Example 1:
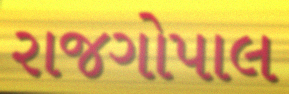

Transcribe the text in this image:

રાજગોપાલ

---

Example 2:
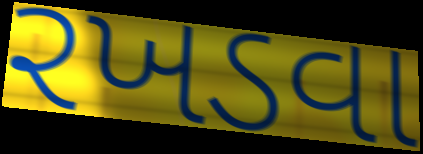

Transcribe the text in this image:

રખડવા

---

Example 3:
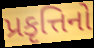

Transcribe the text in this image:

પ્રકૃત્તિનો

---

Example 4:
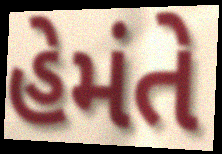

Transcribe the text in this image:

હેમંતે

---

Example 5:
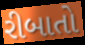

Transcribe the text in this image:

રીબાતો